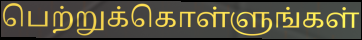
பெற்றுக்கொள்ளுங்கள்